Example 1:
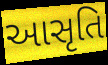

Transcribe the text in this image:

આસૃતિ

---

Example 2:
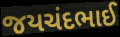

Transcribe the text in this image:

જયચંદભાઈ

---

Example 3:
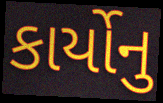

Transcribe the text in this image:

કાર્યોનુ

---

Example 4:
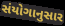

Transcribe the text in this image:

સંયોગાનુસાર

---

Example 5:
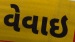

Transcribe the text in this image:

વેવાઇ